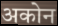
अकोन